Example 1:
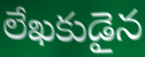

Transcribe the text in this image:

లేఖకుడైన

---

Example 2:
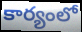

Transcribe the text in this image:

కార్యంలో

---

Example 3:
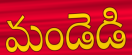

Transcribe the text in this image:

మండెడి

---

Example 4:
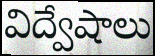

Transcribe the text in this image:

విద్వేషాలు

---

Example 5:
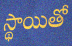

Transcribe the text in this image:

స్థాయితో